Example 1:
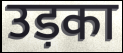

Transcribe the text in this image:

उड़का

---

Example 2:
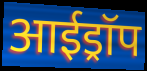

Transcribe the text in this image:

आईड्रॉप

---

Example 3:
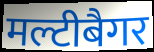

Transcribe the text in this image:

मल्‍टीबैगर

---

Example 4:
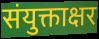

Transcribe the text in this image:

संयुक्ताक्षर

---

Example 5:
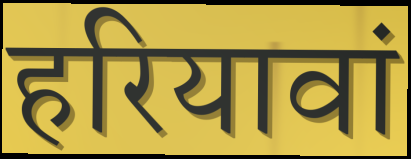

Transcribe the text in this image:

हरियावां